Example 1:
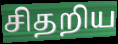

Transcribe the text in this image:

சிதறிய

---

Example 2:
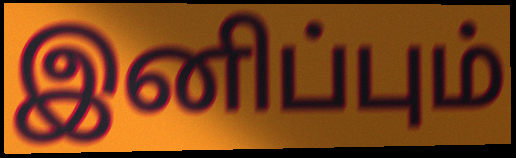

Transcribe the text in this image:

இனிப்பும்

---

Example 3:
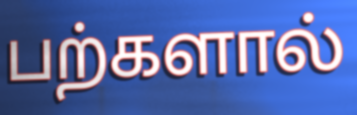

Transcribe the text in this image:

பற்களால்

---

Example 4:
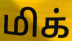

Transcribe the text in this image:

மிக்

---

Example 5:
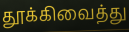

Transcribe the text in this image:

தூக்கிவைத்து